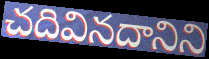
చదివినదానిని